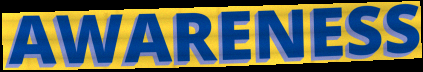
AWARENESS